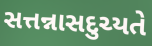
સત્તન્નાસદુચ્યતે